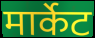
मार्केट